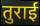
तुराई